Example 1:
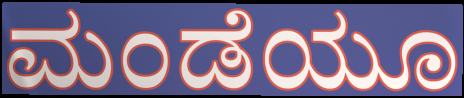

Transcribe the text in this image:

ಮಂಡೆಯೂ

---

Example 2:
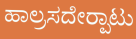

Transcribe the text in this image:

ಹಾಲ್ರಸದೇರ‍್ಪಾಟು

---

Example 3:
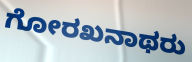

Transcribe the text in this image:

ಗೋರಖನಾಥರು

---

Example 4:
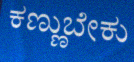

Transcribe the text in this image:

ಕಣ್ಣುಬೇಕು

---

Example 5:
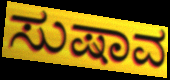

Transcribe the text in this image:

ಸುಷಾವ